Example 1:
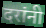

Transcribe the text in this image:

दरांनी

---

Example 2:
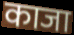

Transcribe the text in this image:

काजा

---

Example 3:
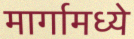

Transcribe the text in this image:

मार्गामध्ये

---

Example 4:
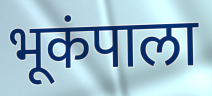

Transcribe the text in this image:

भूकंपाला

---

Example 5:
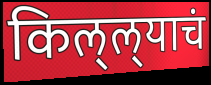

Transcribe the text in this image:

किल्ल्याचं